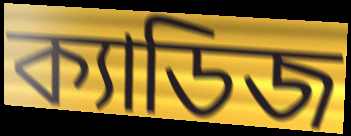
ক্যাডিজ